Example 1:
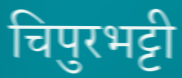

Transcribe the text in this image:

चिपुरभट्टी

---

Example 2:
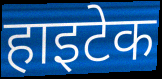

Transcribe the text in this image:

हाइटेक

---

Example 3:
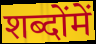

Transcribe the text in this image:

शब्दोंमें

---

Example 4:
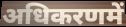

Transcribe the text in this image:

अधिकरणमें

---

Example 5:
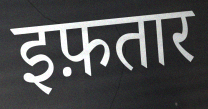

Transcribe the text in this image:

इफ़तार